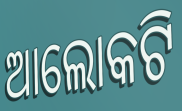
ଆଲୋକଟି